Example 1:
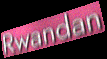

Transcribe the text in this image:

Rwandan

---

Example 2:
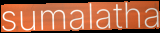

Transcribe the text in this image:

sumalatha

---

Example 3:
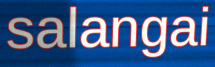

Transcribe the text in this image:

salangai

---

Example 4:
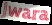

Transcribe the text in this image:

Jwara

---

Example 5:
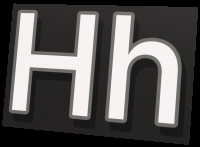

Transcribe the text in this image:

Hh